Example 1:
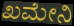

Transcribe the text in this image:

ಖಮೇನಿ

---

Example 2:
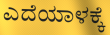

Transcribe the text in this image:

ಎದೆಯಾಳಕ್ಕೆ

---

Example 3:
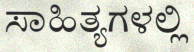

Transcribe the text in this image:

ಸಾಹಿತ್ಯಗಳಲ್ಲಿ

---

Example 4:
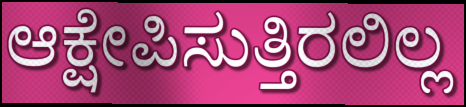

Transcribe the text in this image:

ಆಕ್ಷೇಪಿಸುತ್ತಿರಲಿಲ್ಲ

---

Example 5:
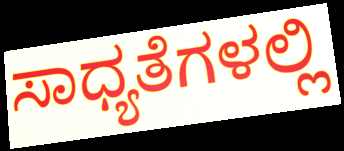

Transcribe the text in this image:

ಸಾಧ್ಯತೆಗಳಲ್ಲಿ